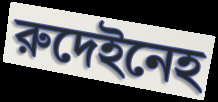
রুদেইনেহ